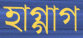
হাগ্গাগ